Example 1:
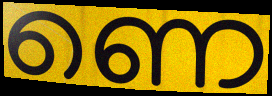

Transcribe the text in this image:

ണെ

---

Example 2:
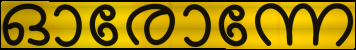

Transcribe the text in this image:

ഓരോന്നേ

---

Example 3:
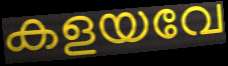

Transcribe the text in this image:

കളയവേ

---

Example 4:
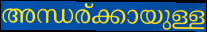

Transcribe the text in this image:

അന്ധര്ക്കായുള്ള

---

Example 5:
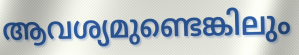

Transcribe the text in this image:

ആവശ്യമുണ്ടെങ്കിലും